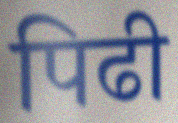
पिढी